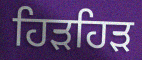
ਹਿੜਹਿੜ